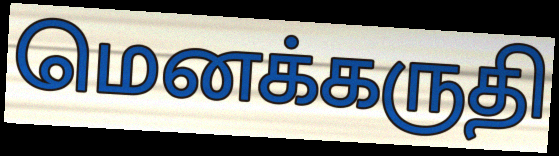
மெனக்கருதி